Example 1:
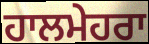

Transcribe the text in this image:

ਹਾਲਮੇਹਰਾ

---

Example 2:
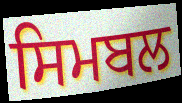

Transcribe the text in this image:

ਸਿਮਬਲ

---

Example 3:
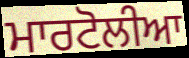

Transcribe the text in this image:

ਮਾਰਟੋਲੀਆ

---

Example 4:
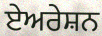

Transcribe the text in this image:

ਏਅਰੇਸ਼ਨ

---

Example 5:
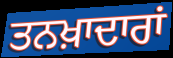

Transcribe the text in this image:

ਤਨਖ਼ਾਦਾਰਾਂ